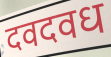
दवदवध